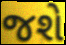
જશે